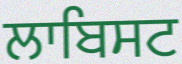
ਲਾਬਿਸਟ